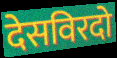
देसविरदो